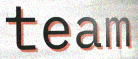
team